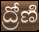
ద్రోణి